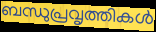
ബന്ധുപ്രവൃത്തികൾ